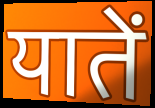
यातें